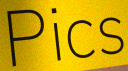
Pics